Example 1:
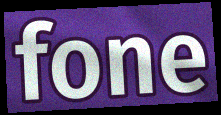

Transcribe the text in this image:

fone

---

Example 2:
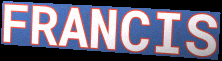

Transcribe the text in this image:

FRANCIS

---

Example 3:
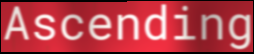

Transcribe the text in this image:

Ascending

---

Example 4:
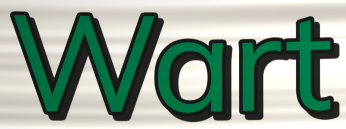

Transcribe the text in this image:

Wart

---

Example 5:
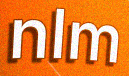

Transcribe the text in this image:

nlm